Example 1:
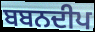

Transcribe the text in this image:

ਬਬਨਦੀਪ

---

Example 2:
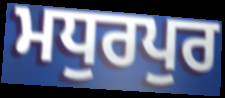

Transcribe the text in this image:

ਮਧੁਰਪੁਰ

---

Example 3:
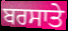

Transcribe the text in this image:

ਬਰਸਾਤੇ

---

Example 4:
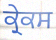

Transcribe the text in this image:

ਕ੍ਰੇਕਸ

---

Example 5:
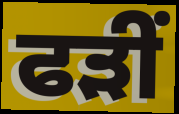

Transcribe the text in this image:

ਫੜੀਂ